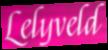
Lelyveld